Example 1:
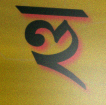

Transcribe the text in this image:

হু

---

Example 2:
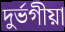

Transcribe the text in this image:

দুৰ্ভগীয়া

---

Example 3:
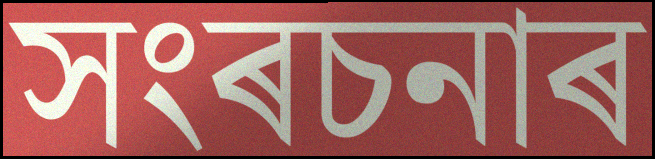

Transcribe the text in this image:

সংৰচনাৰ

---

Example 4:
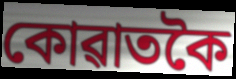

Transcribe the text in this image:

কোৱাতকৈ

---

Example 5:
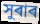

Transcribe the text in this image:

সুৰাৰ